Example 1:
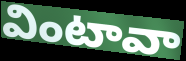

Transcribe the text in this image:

వింటావా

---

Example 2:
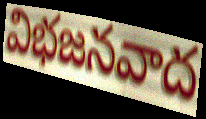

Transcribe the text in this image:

విభజనవాద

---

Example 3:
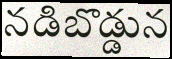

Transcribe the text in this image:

నడిబొడ్డున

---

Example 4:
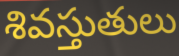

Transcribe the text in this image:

శివస్తుతులు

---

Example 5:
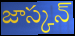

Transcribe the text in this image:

జాస్కన్